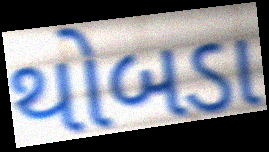
થોબડા